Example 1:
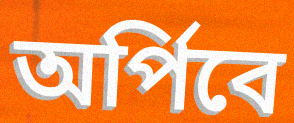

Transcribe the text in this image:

অর্পিবে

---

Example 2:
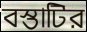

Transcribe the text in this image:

বস্তাটির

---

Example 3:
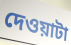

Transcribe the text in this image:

দেওয়াটা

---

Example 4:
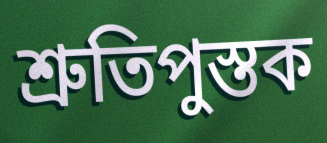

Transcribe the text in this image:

শ্রুতিপুস্তক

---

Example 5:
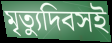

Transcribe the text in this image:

মৃত্যুদিবসই